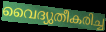
വൈദ്യുതീകരിച്ച